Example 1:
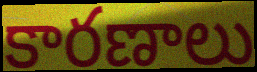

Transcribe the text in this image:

కారణాలు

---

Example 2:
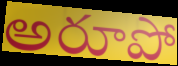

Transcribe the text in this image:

అరూపో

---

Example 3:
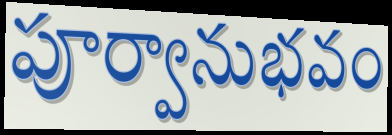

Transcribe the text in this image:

పూర్వానుభవం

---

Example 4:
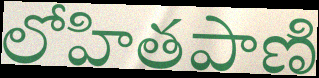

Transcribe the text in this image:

లోహితపాణి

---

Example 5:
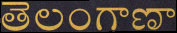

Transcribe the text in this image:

తెలంగాణా